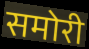
समोरी